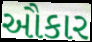
ઔકાર